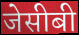
जेसीबी